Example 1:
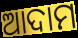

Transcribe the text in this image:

ଆଦାମ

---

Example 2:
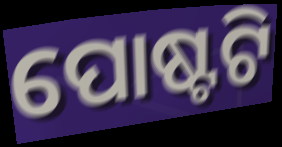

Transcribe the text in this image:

ପୋଷ୍ଟଟି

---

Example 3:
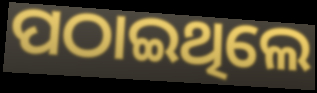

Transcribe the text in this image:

ପଠାଇଥିଲେ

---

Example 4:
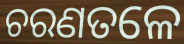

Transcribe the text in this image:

ଚରଣତଳେ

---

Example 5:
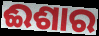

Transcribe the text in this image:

ଈଶାର